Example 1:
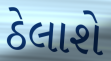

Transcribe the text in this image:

ઠેલાશે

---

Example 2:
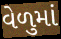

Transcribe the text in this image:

વેળુમાં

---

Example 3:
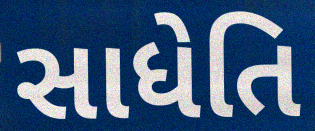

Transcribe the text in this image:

સાધેતિ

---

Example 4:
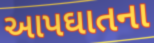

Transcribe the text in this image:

આપઘાતના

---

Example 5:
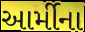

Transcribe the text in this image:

આર્મીના